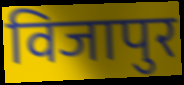
विजापुर